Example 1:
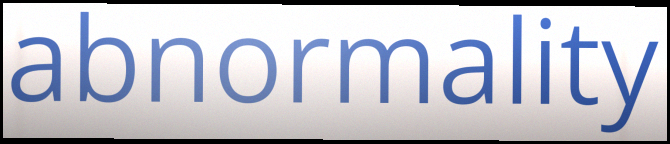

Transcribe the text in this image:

abnormality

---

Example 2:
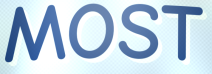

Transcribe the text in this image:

MOST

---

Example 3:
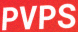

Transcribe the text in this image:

PVPS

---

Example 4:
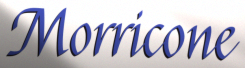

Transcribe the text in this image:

Morricone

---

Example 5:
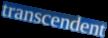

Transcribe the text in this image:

transcendent